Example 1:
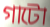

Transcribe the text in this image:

গাটো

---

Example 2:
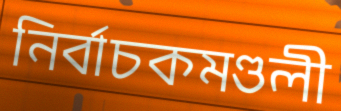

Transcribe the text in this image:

নিৰ্বাচকমণ্ডলী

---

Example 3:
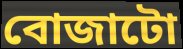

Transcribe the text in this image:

বোজাটো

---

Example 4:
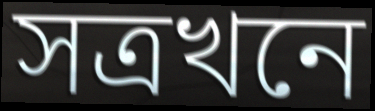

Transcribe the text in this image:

সত্ৰখনে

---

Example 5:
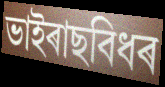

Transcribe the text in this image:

ভাইৰাছবিধৰ